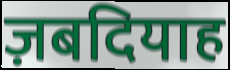
ज़बदियाह